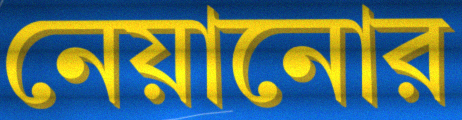
নেয়ানোর